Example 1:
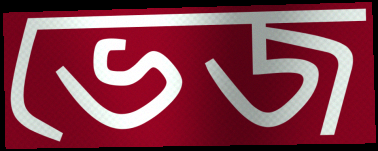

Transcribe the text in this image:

ভেজ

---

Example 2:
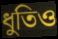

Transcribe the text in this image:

ধুতিও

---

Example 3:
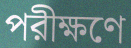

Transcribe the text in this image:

পরীক্ষণে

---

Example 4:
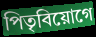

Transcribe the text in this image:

পিতৃবিয়োগে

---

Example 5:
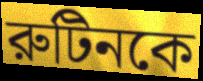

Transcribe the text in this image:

রুটিনকে